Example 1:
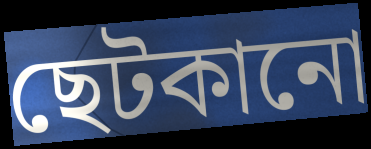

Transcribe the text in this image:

ছেটকানো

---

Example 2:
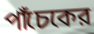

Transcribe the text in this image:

পাঁচেকের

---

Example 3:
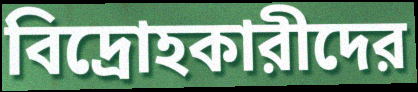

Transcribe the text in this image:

বিদ্রোহকারীদের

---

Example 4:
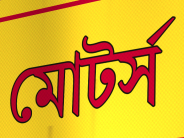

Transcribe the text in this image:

মোটর্স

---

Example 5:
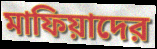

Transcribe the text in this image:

মাফিয়াদের